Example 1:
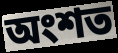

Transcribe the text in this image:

অংশত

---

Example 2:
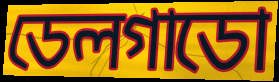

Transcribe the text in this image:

ডেলগাডো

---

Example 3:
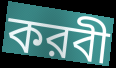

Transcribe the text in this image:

করবী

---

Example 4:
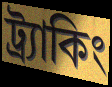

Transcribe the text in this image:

ট্র্যাকিং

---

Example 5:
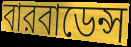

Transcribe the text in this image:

বারবাডেন্স